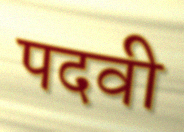
पदवी